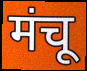
मंचू